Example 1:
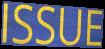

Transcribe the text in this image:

ISSUE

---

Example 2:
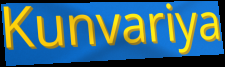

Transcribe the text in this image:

Kunvariya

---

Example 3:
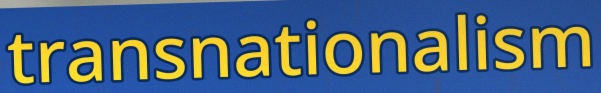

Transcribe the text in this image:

transnationalism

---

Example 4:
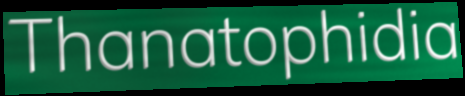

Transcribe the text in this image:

Thanatophidia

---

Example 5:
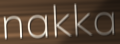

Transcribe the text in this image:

nakka